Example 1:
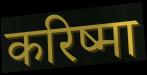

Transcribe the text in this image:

करिष्मा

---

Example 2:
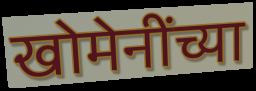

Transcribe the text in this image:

खोमेनींच्या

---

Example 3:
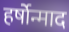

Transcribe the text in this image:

हर्षोन्माद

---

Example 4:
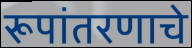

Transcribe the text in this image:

रूपांतरणाचे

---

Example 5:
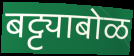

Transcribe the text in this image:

बट्ट्याबोळ